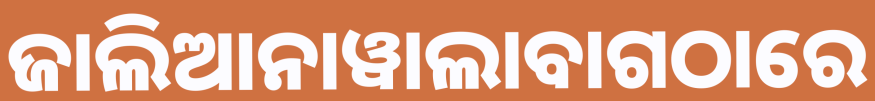
ଜାଲିଆନାୱାଲାବାଗଠାରେ